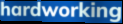
hardworking